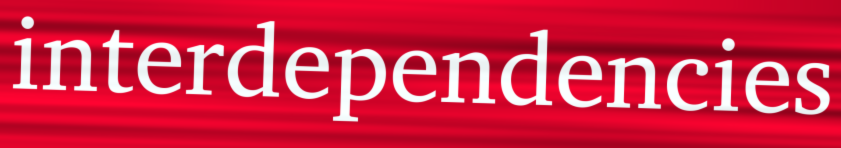
interdependencies